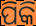
ପିକି